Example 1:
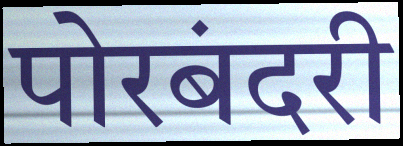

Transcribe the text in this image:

पोरबंदरी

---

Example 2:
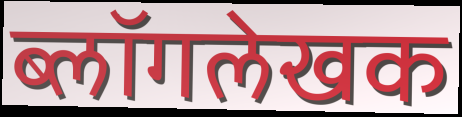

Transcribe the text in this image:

ब्लॉगलेखक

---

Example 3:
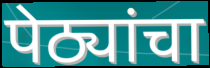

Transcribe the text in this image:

पेठ्यांचा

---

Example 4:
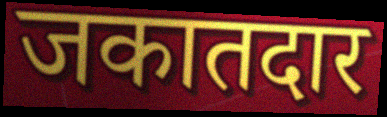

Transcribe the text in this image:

जकातदार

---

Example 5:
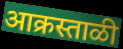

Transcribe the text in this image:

आक्रस्ताळी